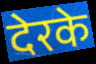
देरके